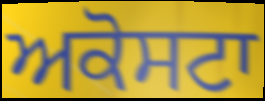
ਅਕੋਸਟਾ